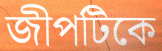
জীপটিকে